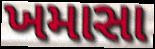
ખમાસા